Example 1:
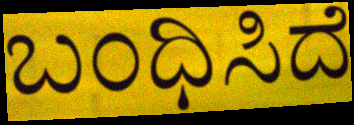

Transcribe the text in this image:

ಬಂಧಿಸಿದೆ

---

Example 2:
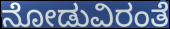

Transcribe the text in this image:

ನೋಡುವಿರಂತೆ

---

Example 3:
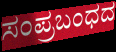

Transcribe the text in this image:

ಸಂಪ್ರಬಂಧದ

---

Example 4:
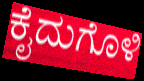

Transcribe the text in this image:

ಕೈದುಗೊಳಿ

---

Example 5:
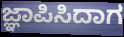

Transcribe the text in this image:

ಜ್ಞಾಪಿಸಿದಾಗ